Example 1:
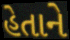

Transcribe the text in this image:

હેતાને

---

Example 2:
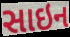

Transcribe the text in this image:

સાઇન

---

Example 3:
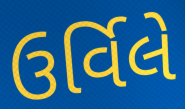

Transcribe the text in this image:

ઉર્વિલે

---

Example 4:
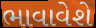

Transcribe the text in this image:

ભાવાવેશે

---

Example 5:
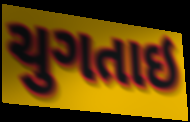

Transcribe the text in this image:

ચુગતાઇ